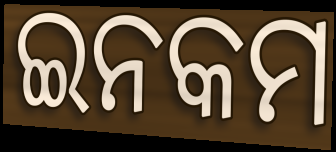
ଇନକମ